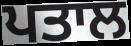
ਪਤਾਲ